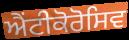
ਐਂਟੀਕੋਰੋਸਿਵ